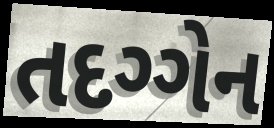
તદગ્ગેન